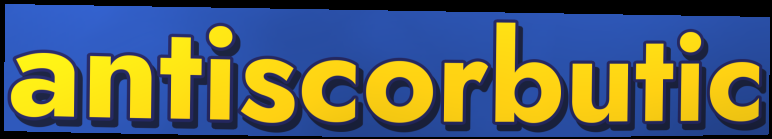
antiscorbutic